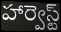
హార్వెస్ట్